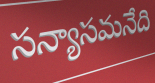
సన్యాసమనేది